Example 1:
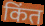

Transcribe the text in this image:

किंत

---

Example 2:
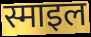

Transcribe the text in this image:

स्माइल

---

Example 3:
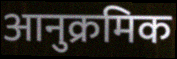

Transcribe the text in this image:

आनुक्रमिक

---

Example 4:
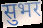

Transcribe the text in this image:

सुभर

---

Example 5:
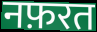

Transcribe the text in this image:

नफ़रत